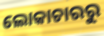
ଲୋକାଚାରରୁ